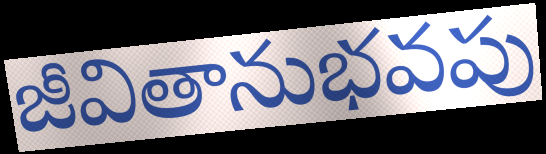
జీవితానుభవపు